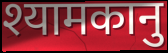
श्यामकानु